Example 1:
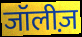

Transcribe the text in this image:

जॉलीज़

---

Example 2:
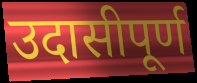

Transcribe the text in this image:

उदासीपूर्ण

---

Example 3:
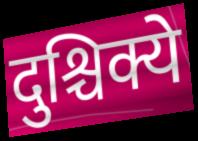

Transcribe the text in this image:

दुश्चिक्ये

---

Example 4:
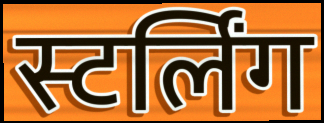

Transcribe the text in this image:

स्टर्लिंग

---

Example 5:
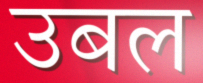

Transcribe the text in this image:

उबल